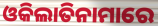
ଓକିଲାତିନାମାରେ